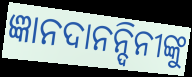
ଜ୍ଞାନଦାନନ୍ଦିନୀଙ୍କୁ